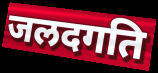
जलदगति